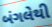
બંગલેથી